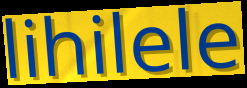
lihilele